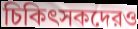
চিকিৎসকদেরও